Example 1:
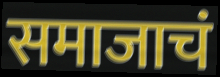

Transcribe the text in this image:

समाजाचं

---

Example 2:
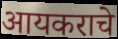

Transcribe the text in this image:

आयकराचे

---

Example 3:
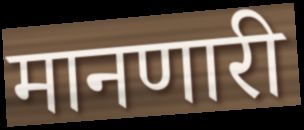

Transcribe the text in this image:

मानणारी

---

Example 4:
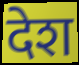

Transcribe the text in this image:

देश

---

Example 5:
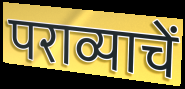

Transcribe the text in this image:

पराव्याचें